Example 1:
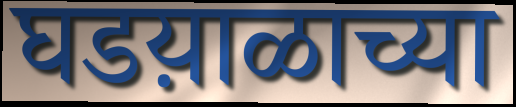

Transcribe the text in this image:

घडय़ाळाच्या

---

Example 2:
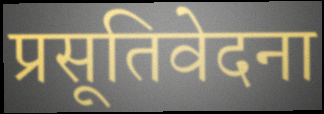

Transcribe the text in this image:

प्रसूतिवेदना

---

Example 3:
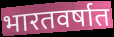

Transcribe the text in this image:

भारतवर्षात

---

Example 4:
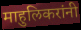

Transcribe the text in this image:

माहुलिकरांनी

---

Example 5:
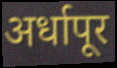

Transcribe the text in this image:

अर्धापूर